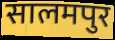
सालमपुर